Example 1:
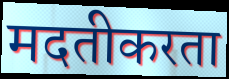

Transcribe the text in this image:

मदतीकरता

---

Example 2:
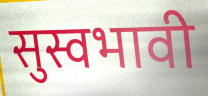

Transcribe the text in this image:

सुस्वभावी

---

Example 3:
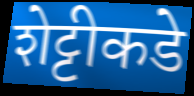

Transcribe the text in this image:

शेट्टीकडे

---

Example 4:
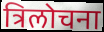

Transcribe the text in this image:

त्रिलोचना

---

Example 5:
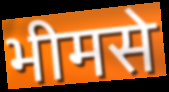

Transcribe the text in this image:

भीमसे